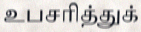
உபசரித்துக்